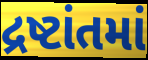
દ્રષ્ટાંતમાં